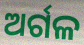
ଅର୍ଗଳ